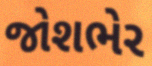
જોશભેર